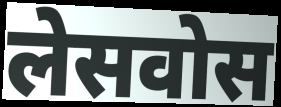
लेसवोस